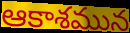
ఆకాశమున